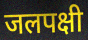
जलपक्षी